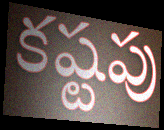
కష్టపు